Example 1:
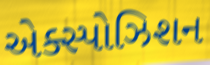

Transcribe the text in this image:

એક્સ્પોઝિશન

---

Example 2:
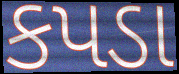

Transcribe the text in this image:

કપડા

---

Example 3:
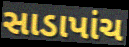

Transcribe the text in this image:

સાડાપાંચ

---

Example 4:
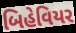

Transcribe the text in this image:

બિહેવિયર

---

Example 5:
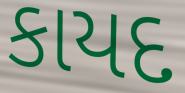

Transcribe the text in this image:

કાયદ